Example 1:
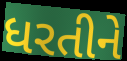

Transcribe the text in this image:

ધરતીને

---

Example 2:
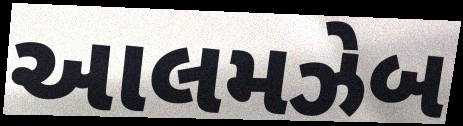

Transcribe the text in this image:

આલમઝેબ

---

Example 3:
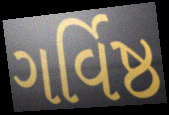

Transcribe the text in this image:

ગર્વિષ્ઠ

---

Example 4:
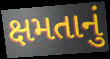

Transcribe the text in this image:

ક્ષમતાનું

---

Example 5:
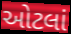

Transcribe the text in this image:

ઓટલાં